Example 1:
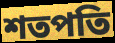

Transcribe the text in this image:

শতপতি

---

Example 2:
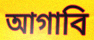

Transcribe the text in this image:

আগাবি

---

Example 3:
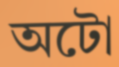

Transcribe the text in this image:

অটো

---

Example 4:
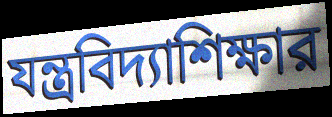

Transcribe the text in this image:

যন্ত্রবিদ্যাশিক্ষার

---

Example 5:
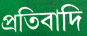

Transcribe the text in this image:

প্রতিবাদি